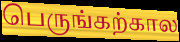
பெருங்கற்கால